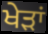
ਖੇੜਾਂ